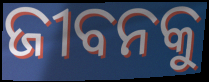
ଜୀବନକୁ